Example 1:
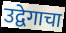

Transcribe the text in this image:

उद्वेगाचा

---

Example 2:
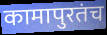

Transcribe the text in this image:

कामापुरतंच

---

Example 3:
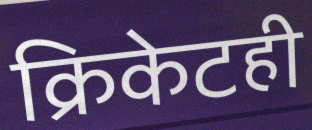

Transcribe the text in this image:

क्रिकेटही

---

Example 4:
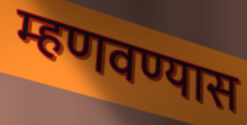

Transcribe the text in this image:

म्हणवण्यास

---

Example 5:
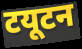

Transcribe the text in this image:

टयूटन